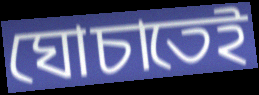
ঘোচাতেই